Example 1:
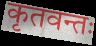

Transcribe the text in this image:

कृतवन्तः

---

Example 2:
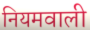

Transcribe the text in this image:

नियमवाली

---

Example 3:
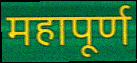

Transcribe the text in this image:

महापूर्ण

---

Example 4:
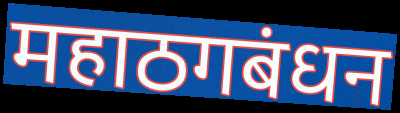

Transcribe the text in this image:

महाठगबंधन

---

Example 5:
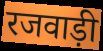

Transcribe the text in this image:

रजवाड़ी